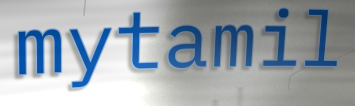
mytamil